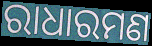
ରାଧାରମଣ